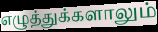
எழுத்துக்களாலும்